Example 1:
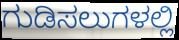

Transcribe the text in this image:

ಗುಡಿಸಲುಗಳಲ್ಲಿ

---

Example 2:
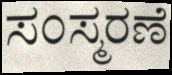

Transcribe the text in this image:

ಸಂಸ್ಮರಣೆ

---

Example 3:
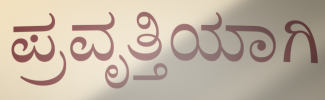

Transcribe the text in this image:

ಪ್ರವೃತ್ತಿಯಾಗಿ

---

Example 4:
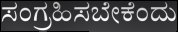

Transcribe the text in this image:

ಸಂಗ್ರಹಿಸಬೇಕೆಂದು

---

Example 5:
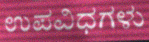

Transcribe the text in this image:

ಉಪವಿಧಗಳು